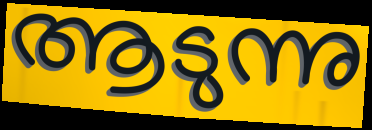
ആടുന്നു